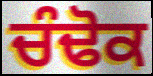
ਚੰਢੋਕ